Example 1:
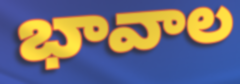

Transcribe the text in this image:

భావాల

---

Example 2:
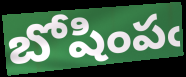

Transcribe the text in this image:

బోషింపఁ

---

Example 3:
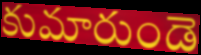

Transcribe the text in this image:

కుమారుండె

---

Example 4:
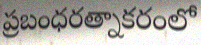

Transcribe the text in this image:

ప్రబంధరత్నాకరంలో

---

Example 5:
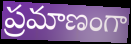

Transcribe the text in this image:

ప్రమాణంగా